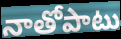
నాతోపాటు